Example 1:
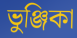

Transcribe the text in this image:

ভুঞ্জিকা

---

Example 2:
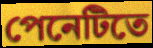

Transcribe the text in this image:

পেনেটিতে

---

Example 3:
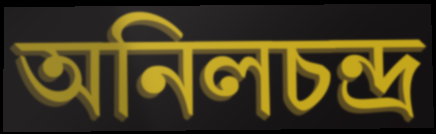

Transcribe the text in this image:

অনিলচন্দ্র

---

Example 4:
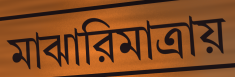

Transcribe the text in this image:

মাঝারিমাত্রায়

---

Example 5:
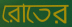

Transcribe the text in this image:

রোতের